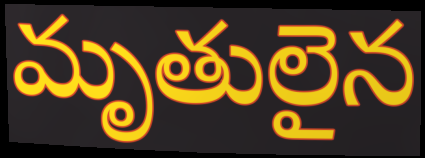
మృతులైన